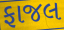
ફાજલ